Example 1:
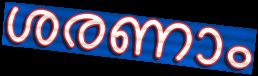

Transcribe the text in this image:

ശരണാം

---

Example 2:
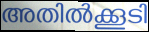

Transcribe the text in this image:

അതിൽക്കൂടി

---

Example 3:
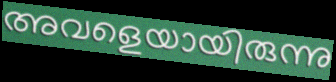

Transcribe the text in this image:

അവളെയായിരുന്നു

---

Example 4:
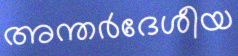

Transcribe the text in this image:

അന്തർദേശീയ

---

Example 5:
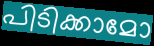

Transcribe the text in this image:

പിടിക്കാമോ